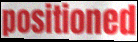
positioned